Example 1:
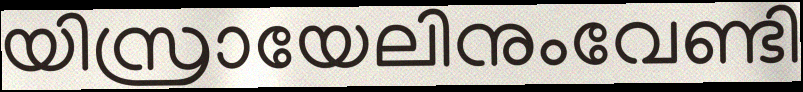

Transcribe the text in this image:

യിസ്രായേലിനുംവേണ്ടി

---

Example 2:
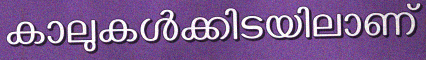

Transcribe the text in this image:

കാലുകൾക്കിടയിലാണ്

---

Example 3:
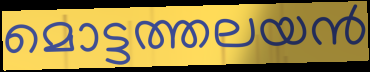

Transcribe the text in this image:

മൊട്ടത്തലയൻ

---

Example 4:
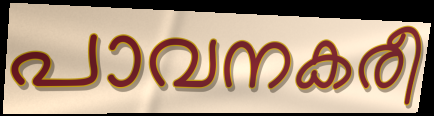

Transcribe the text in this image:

പാവനകരീ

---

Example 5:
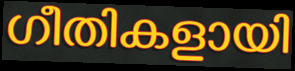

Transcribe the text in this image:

ഗീതികളായി